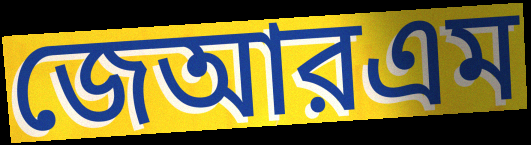
জেআরএম